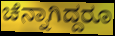
ಚೆನ್ನಾಗಿದ್ದರೂ